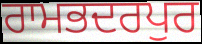
ਰਾਮਭਦਰਪੁਰ